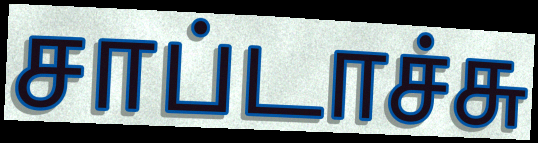
சாப்டாச்சு